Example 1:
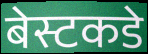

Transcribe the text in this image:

बेस्टकडे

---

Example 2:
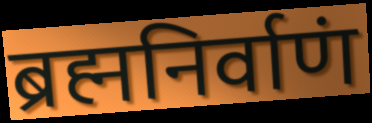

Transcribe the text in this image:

ब्रह्मनिर्वाणं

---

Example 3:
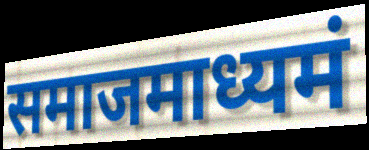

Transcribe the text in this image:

समाजमाध्यमं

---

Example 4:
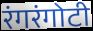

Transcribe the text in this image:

रंगरंगोटी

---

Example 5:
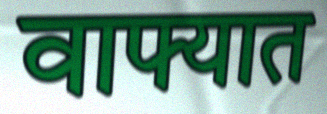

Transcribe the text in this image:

वाफ्यात